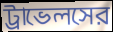
ট্রাভেলসের